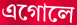
এগোলে